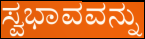
ಸ್ವಭಾವವನ್ನು